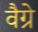
वैग्रे